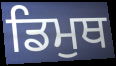
ਡਿਮੁਥ